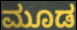
ಮೂಡ